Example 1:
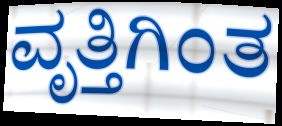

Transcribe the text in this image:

ವೃತ್ತಿಗಿಂತ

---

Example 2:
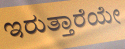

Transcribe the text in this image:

ಇರುತ್ತಾರೆಯೇ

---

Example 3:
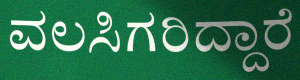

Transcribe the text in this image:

ವಲಸಿಗರಿದ್ದಾರೆ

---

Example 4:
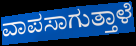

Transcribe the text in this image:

ವಾಪಸಾಗುತ್ತಾಳೆ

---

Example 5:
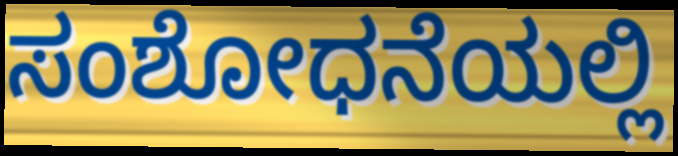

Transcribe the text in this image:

ಸಂಶೋಧನೆಯಲ್ಲಿ